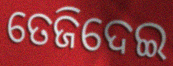
ତେଜିଦେଇ